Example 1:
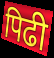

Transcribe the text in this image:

पिढी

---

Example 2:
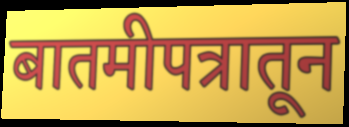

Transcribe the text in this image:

बातमीपत्रातून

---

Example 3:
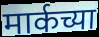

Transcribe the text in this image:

मार्कच्या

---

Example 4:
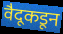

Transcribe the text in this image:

वैदूकडून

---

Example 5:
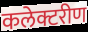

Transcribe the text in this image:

कलेक्टरीण